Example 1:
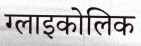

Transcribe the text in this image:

ग्लाइकोलिक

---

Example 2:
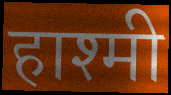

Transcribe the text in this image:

हाश्मी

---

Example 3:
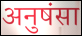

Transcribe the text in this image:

अनुषंसा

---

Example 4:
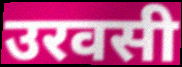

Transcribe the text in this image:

उरवसी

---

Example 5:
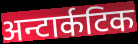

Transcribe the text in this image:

अन्टार्कटिक